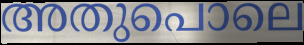
അതുപൊലെ